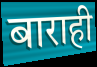
बाराही